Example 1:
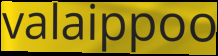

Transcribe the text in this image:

valaippoo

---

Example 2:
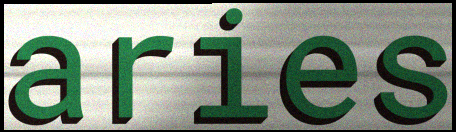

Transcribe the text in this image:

aries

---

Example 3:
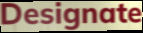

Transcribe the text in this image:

Designate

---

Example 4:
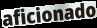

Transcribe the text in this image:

aficionado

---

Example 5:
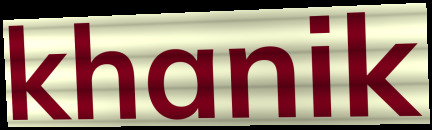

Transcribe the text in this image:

khanik